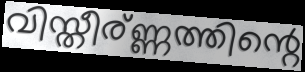
വിസ്തീര്ണ്ണത്തിന്റെ